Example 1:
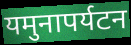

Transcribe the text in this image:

यमुनापर्यटन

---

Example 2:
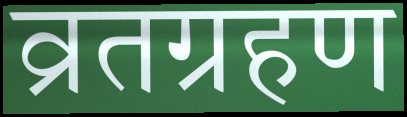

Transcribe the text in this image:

व्रतग्रहण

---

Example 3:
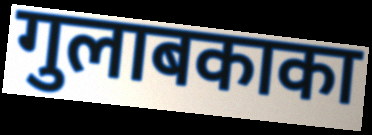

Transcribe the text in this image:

गुलाबकाका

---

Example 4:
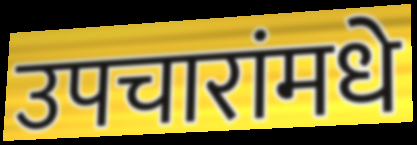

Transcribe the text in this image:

उपचारांमधे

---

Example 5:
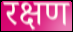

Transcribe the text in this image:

रक्षण